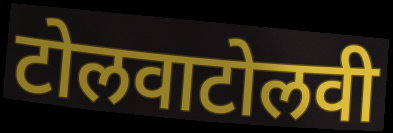
टोलवाटोलवी